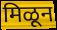
मिळून